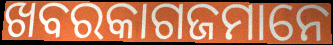
ଖବରକାଗଜମାନେ